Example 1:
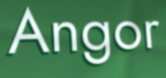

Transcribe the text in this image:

Angor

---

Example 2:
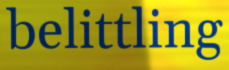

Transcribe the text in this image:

belittling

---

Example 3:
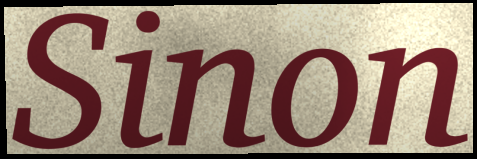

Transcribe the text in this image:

Sinon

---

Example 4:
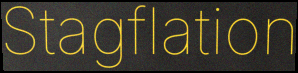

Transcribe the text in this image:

Stagflation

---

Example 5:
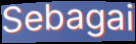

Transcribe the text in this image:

Sebagai